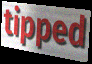
tipped